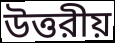
উত্তরীয়